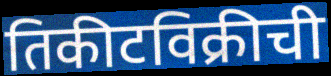
तिकीटविक्रीची